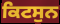
ਕਿਟਸੁਨ